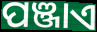
ପଞ୍ଜାଏ